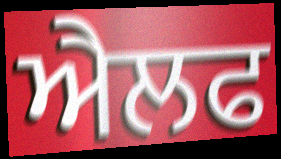
ਐਲਫ